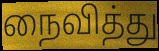
நைவித்து